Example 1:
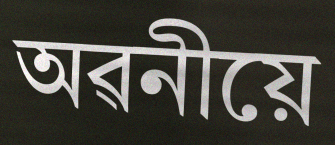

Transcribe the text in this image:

অৱনীয়ে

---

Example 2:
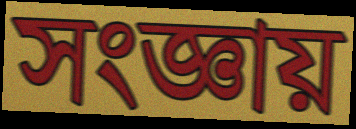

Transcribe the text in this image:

সংজ্ঞায়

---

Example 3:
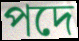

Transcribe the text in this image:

পদে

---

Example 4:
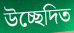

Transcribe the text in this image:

উচ্ছেদিত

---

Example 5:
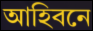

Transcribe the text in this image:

আহিবনে